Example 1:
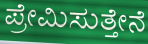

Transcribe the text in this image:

ಪ್ರೇಮಿಸುತ್ತೇನೆ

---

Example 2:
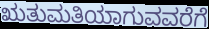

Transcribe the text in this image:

ಋತುಮತಿಯಾಗುವವರೆಗೆ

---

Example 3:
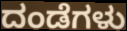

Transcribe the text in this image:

ದಂಡೆಗಳು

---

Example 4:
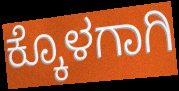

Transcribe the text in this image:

ಕ್ಕೊಳಗಾಗಿ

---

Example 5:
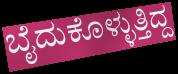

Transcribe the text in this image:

ಬೈದುಕೊಳ್ಳುತ್ತಿದ್ದ